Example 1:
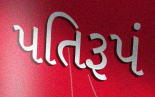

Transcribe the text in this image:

પતિરૂપં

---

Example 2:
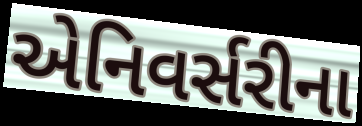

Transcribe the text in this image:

એનિવર્સરીના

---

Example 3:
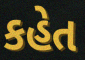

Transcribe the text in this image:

કહેત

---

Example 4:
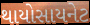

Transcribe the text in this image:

થાયોસાયનેટ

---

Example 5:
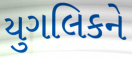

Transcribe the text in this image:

યુગલિકને